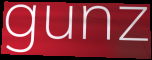
gunz